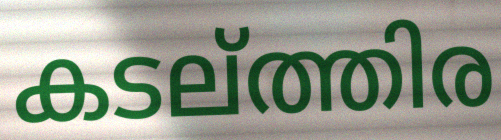
കടല്ത്തിര